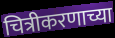
चित्रीकरणाच्या